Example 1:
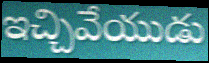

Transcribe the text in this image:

ఇచ్చివేయుడు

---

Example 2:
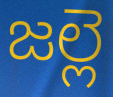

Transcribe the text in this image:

జల్లె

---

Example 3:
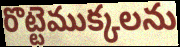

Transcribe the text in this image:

రొట్టెముక్కలను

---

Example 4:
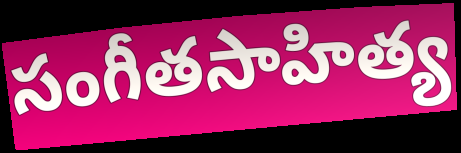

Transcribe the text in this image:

సంగీతసాహిత్య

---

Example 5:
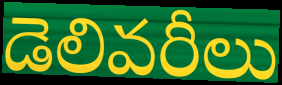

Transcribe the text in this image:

డెలివరీలు